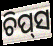
ଚିପ୍‌ସ